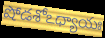
షోడశోఽధ్యాయః